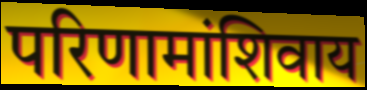
परिणामांशिवाय